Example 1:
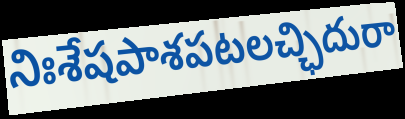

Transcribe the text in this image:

నిఃశేషపాశపటలచ్ఛిదురా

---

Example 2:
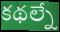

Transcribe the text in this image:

కథల్నే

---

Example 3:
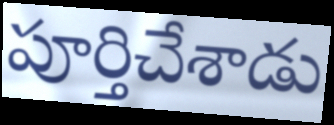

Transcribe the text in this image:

పూర్తిచేశాడు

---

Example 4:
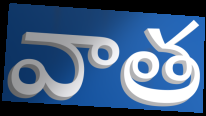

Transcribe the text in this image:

వాత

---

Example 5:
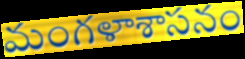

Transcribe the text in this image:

మంగళాశాసనం